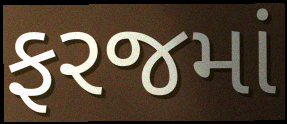
ફરજમાં